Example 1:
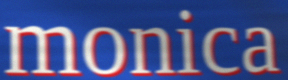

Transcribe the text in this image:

monica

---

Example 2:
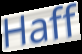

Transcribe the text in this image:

Haff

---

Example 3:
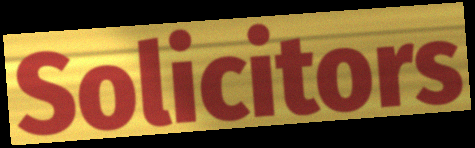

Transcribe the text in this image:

Solicitors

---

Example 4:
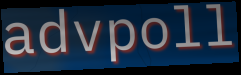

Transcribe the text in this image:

advpoll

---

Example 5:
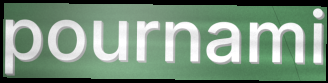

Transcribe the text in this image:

pournami